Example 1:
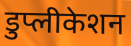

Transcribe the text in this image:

डुप्लीकेशन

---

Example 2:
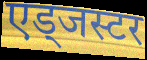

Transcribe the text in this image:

एड्जस्टर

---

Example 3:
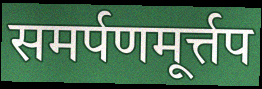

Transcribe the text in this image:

समर्पणमूर्त्तप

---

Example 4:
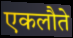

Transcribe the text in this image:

एकलौते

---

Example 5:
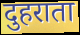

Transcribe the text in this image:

दुहराता